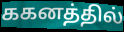
ககனத்தில்